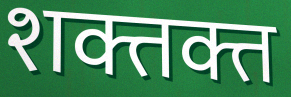
शक्तक्त